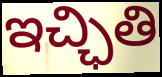
ఇచ్ఛితి